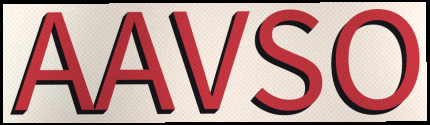
AAVSO